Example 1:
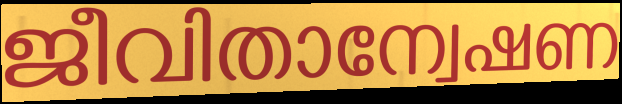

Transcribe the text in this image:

ജീവിതാന്വേഷണ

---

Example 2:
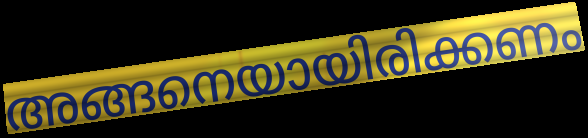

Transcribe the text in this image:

അങ്ങനെയായിരിക്കണം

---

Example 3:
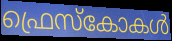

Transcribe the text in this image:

ഫ്രെസ്കോകൾ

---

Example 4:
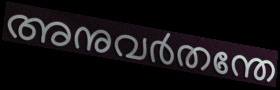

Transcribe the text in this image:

അനുവർതന്തേ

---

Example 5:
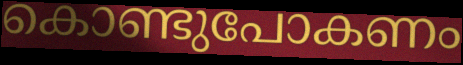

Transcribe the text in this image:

കൊണ്ടുപോകണം